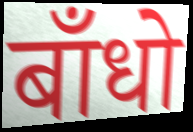
बाँधो